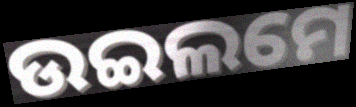
ଉଇଲମେ